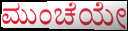
ಮುಂಚೆಯೇ